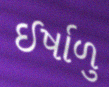
ઈર્ષાળુ